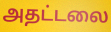
அதட்டலை